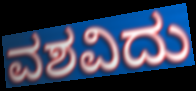
ವಶವಿದು